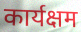
कार्यक्षम